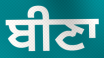
ਬੀਣਾ